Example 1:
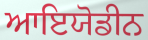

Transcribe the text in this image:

ਆਇਯੋਡੀਨ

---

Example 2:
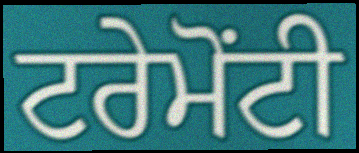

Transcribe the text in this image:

ਟਰੇਮੋਂਟੀ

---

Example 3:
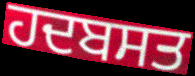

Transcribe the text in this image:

ਹਦਬਸਤ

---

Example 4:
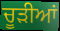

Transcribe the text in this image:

ਚੂੜੀਆਂ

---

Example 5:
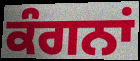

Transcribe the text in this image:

ਕੰਗਨਾਂ